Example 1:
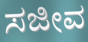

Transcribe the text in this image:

ಸಜೀವ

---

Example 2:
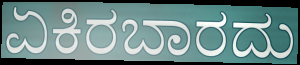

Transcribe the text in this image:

ಏಕಿರಬಾರದು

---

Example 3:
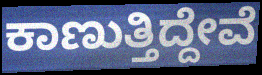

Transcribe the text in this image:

ಕಾಣುತ್ತಿದ್ದೇವೆ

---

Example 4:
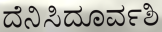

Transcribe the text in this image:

ದೆನಿಸಿದೂರ್ವಶಿ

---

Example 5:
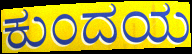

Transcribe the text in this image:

ಕುಂದಯ